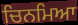
ਚਿਨਮਿਆ